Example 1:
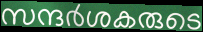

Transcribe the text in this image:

സന്ദർശകരുടെ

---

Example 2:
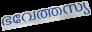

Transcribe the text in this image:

ഭവേത്തസ്യ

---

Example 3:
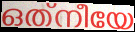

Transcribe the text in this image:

ഒത്‌നീയേ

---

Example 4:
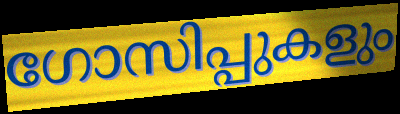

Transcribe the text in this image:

ഗോസിപ്പുകളും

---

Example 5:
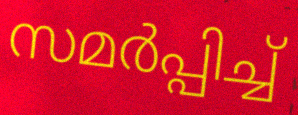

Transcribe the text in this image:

സമർപ്പിച്ച്